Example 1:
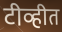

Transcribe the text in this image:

टीव्हीत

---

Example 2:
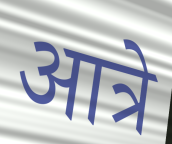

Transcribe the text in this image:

आत्रे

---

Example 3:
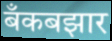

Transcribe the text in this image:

बँकबझार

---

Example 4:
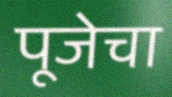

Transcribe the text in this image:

पूजेचा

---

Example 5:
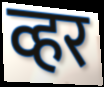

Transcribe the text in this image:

व्हर